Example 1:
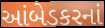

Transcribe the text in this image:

આંબેડકરનાં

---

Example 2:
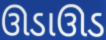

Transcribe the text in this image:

ઊડાઊડ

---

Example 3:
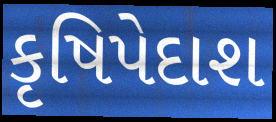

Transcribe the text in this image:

કૃષિપેદાશ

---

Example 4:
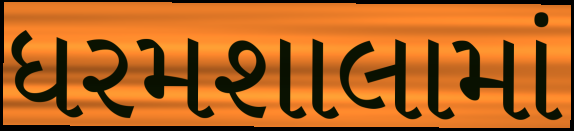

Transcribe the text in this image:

ધરમશાલામાં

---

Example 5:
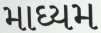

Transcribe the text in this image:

માઘ્યમ